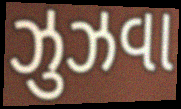
ઝુઝવા